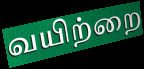
வயிற்றை